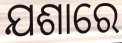
ଯଶାରେ